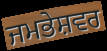
ਜਮਭੇਸ਼ਵਰ